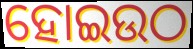
ହୋଇଉଠ